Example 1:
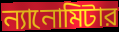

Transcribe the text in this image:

ন্যানোমিটার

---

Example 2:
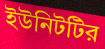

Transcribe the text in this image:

ইউনিটটির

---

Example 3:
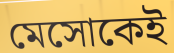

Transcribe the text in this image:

মেসোকেই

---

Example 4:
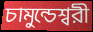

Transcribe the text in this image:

চামুন্ডেশ্বরী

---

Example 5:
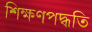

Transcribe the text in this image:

শিক্ষণপদ্ধতি